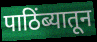
पाठिंब्यातून